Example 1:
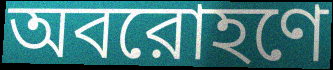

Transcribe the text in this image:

অবরোহণে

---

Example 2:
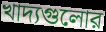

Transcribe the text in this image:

খাদ্যগুলোর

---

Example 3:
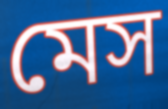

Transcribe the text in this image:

মেস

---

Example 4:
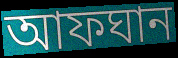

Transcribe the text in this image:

আফঘান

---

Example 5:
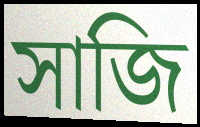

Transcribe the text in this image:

সাজি